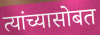
त्यांच्यासोबत